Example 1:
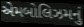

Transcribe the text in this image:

એમબોલિઝમનું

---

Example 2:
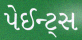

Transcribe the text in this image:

પેઈન્ટ્સ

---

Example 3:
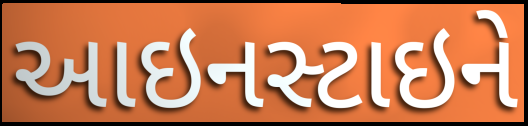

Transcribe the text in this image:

આઇનસ્ટાઇને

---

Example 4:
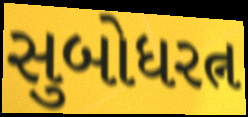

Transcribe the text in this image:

સુબોધરત્ન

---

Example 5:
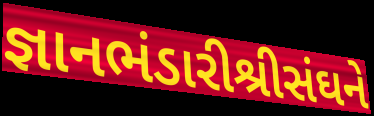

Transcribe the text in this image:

જ્ઞાનભંડારીશ્રીસંઘને